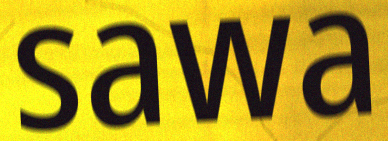
sawa